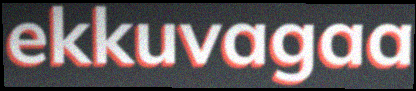
ekkuvagaa